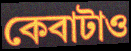
কেবাটাও